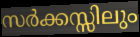
സർക്കസ്സിലും